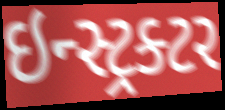
ઇન્સ્ટ્રક્ટર